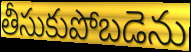
తీసుకుపోబడెను